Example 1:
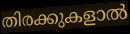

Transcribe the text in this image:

തിരക്കുകളാൽ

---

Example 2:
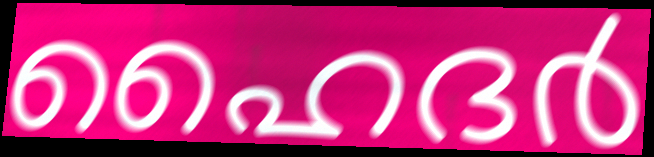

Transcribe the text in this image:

ഹൈദർ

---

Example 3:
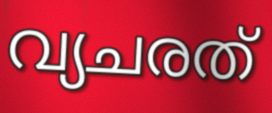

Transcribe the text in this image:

വ്യചരത്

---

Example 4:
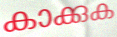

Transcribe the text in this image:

കാക്കുക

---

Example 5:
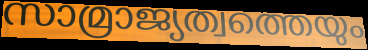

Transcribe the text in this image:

സാമ്രാജ്യത്വത്തെയും